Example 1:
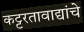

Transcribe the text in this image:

कट्टरतावाद्यांचे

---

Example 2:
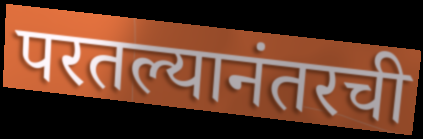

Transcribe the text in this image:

परतल्यानंतरची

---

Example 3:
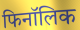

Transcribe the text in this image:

फिनॉलिक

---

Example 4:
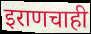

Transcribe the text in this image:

इराणचाही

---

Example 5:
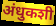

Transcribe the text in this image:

अंधुकशी